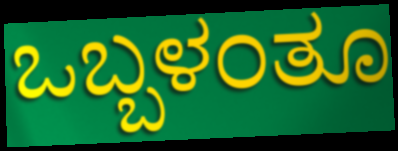
ಒಬ್ಬಳಂತೂ